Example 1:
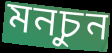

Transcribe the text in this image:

মনচুন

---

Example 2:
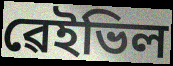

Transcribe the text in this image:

ৱেইভিল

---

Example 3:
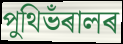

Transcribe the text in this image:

পুথিভঁৰালৰ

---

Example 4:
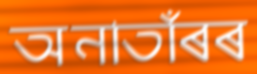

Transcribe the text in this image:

অনাতাঁৰৰ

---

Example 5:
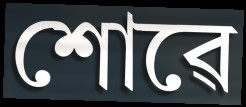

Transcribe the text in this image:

শোৱে